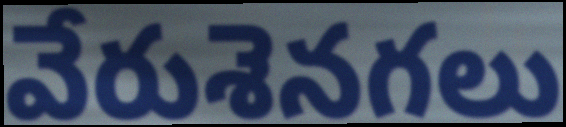
వేరుశెనగలు